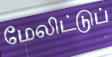
மேலிட்டுப்